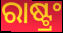
ରାଷ୍ଟ୍ରଂ